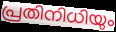
പ്രതിനിധിയും